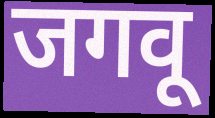
जगवू